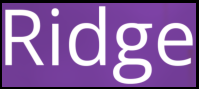
Ridge